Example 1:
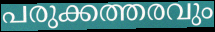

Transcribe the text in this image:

പരുക്കത്തരവും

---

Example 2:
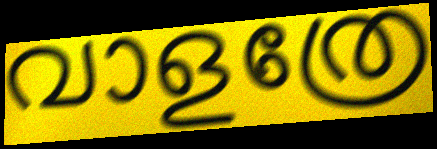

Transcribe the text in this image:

വാളത്രേ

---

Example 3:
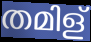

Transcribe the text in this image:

തമിള്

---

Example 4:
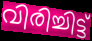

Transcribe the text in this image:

വിരിച്ചിട്ട്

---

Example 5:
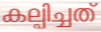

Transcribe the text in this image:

കല്പിച്ചത്